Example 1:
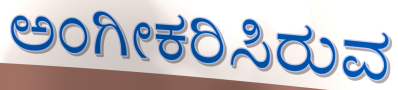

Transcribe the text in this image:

ಅಂಗೀಕರಿಸಿರುವ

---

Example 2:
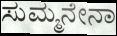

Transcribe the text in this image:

ಸುಮ್ಮನೇನಾ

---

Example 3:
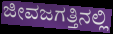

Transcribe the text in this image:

ಜೀವಜಗತ್ತಿನಲ್ಲಿ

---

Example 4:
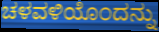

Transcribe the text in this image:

ಚಳವಳಿಯೊಂದನ್ನು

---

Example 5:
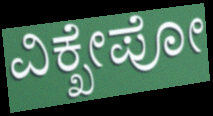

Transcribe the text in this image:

ವಿಕ್ಖೇಪೋ